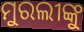
ମୁରଲୀଙ୍କୁ